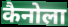
कैनोला